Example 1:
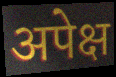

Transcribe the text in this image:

अपेक्ष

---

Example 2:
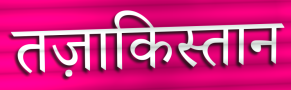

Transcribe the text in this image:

तज़ाकिस्तान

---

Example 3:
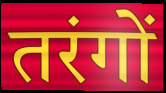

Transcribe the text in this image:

तरंगों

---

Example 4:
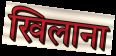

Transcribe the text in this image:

खिलाना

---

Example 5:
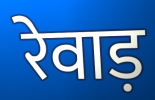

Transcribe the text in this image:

रेवाड़